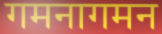
गमनागमन